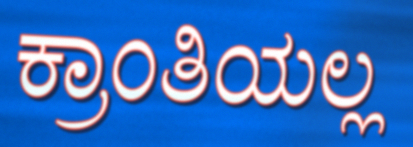
ಕ್ರಾಂತಿಯಲ್ಲ